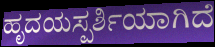
ಹೃದಯಸ್ಪರ್ಶಿಯಾಗಿದೆ